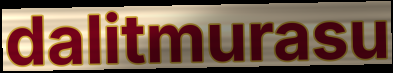
dalitmurasu